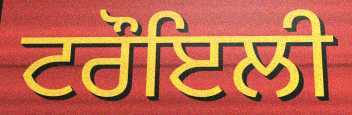
ਟਰੌਇਲੀ